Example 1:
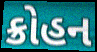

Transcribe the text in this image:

ક્રોહન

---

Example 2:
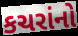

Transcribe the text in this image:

કચરાંનો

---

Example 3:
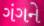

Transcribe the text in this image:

ગંગને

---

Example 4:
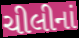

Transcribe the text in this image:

ચીલીનાં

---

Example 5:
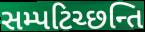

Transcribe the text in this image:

સમ્પટિચ્છન્તિ